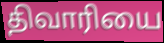
திவாரியை